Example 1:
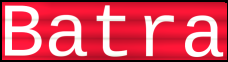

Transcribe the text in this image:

Batra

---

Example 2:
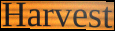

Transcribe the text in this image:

Harvest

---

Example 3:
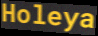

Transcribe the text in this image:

Holeya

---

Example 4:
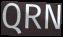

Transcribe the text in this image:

QRN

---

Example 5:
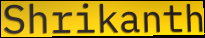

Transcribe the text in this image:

Shrikanth